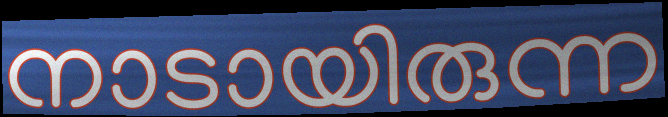
നാടായിരുന്ന